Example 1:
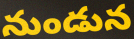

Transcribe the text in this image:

నుండున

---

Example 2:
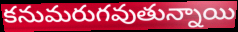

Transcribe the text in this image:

కనుమరుగవుతున్నాయి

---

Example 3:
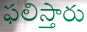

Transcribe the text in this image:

ఫలిస్తారు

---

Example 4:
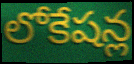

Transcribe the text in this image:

లోకేషన్ల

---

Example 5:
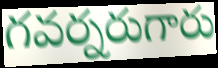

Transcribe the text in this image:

గవర్నరుగారు